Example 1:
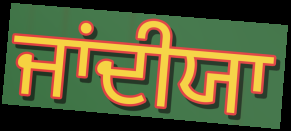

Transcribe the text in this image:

ਜਾਂਦੀਯਾ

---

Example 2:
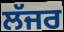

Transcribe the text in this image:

ਲੱਜਰ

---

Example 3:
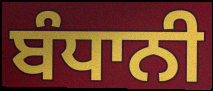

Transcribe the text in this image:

ਬੰਧਾਨੀ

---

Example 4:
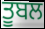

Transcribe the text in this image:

ਤੂਬਲ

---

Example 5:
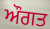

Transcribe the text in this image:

ਔਗਤ